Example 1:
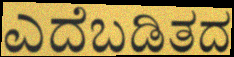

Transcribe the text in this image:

ಎದೆಬಡಿತದ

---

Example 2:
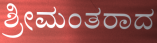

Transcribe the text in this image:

ಶ್ರೀಮಂತರಾದ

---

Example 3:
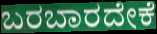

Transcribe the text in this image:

ಬರಬಾರದೇಕೆ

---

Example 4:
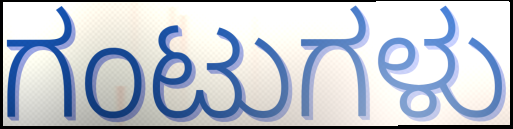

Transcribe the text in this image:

ಗಂಟುಗಳು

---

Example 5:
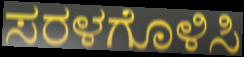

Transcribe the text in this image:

ಸರಳಗೊಳಿಸಿ